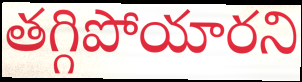
తగ్గిపోయారని